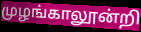
முழங்காலூன்றி